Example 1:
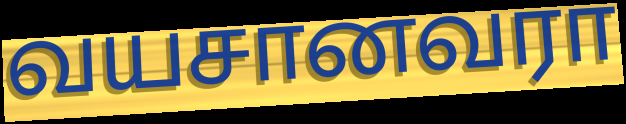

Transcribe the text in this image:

வயசானவரா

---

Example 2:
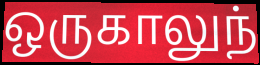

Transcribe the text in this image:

ஒருகாலுந்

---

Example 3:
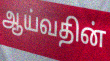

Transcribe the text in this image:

ஆய்வதின்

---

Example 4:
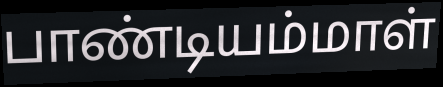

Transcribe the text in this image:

பாண்டியம்மாள்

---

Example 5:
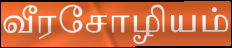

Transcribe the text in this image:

வீரசோழியம்